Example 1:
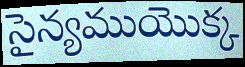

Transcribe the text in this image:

సైన్యముయొక్క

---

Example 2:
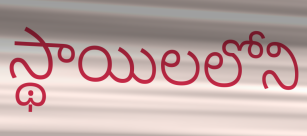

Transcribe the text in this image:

స్థాయిలలోని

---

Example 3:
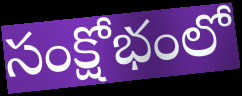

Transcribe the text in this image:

సంక్షోభంలో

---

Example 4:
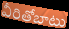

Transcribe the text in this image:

వీరితోబాటు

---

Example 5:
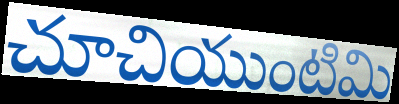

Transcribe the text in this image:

చూచియుంటిమి